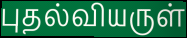
புதல்வியருள்